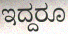
ಇದ್ದರೂ